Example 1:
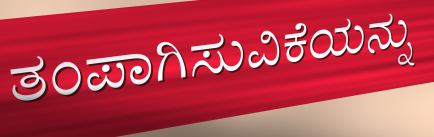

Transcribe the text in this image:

ತಂಪಾಗಿಸುವಿಕೆಯನ್ನು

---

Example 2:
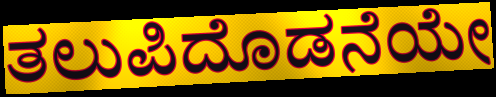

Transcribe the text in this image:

ತಲುಪಿದೊಡನೆಯೇ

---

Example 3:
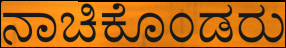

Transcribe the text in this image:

ನಾಚಿಕೊಂಡರು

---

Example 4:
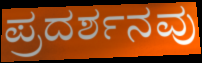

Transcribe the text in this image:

ಪ್ರದರ್ಶನವು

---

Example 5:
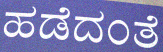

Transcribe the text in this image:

ಹಡೆದಂತೆ